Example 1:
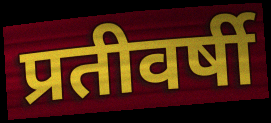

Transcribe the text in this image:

प्रतीवर्षी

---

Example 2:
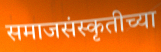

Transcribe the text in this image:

समाजसंस्कृतीच्या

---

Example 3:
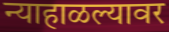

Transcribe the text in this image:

न्याहाळल्यावर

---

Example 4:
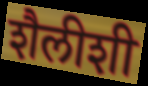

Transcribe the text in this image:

शैलीशी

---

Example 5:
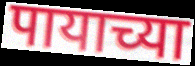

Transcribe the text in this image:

पायाच्या